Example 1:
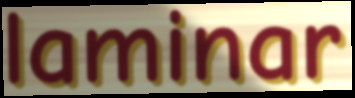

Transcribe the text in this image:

laminar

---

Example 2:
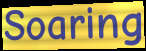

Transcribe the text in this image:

Soaring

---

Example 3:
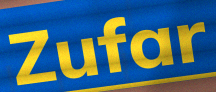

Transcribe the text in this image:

Zufar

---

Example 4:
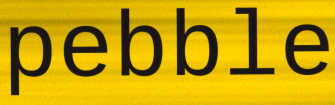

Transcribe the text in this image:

pebble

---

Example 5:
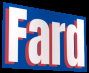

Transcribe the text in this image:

Fard